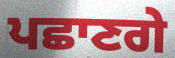
ਪਛਾਣਗੇ